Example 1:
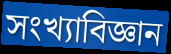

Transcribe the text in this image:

সংখ্যাবিজ্ঞান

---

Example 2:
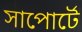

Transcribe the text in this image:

সাপোর্টে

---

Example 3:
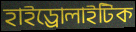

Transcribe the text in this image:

হাইড্রোলাইটিক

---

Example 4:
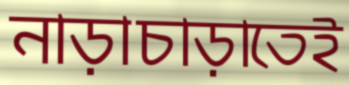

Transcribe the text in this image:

নাড়াচাড়াতেই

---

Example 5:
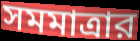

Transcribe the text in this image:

সমমাত্রার